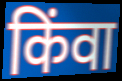
किंवा